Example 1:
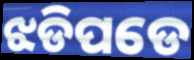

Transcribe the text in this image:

ଝଡିପଡେ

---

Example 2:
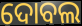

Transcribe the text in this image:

ଦୋବଲ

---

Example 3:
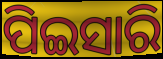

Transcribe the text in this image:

ପିଇସାରି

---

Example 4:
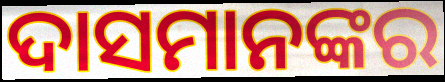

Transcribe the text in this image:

ଦାସମାନଙ୍କର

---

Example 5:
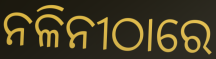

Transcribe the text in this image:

ନଳିନୀଠାରେ